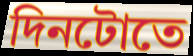
দিনটোতে